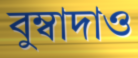
বুম্বাদাও